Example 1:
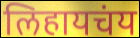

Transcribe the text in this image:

लिहायचंय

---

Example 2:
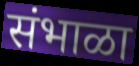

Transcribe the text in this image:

संभाळा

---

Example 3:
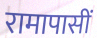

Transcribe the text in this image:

रामापासीं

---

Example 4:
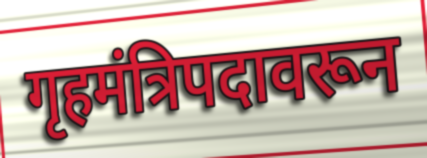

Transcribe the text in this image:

गृहमंत्रिपदावरून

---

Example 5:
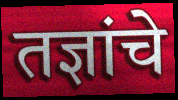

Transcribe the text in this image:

तज्ञांचे